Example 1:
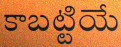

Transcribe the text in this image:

కాబట్టియే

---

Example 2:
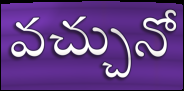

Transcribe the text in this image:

వచ్చునో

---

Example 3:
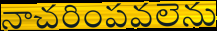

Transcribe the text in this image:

నాచరింపవలెను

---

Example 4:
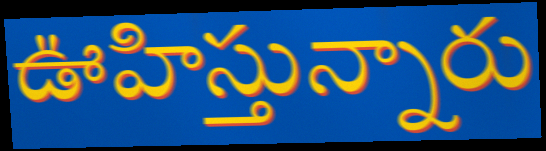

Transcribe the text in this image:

ఊహిస్తున్నారు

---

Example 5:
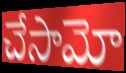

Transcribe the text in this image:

చేసామో